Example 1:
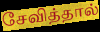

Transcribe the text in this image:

சேவித்தால்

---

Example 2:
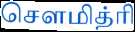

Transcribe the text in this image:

சௌமித்ரி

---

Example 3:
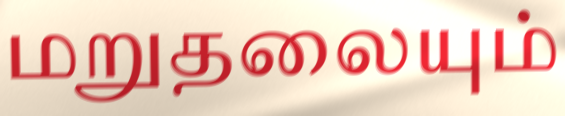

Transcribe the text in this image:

மறுதலையும்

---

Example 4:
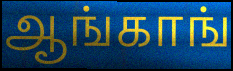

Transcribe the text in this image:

ஆங்காங்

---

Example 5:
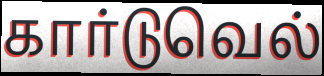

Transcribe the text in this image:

கார்டுவெல்